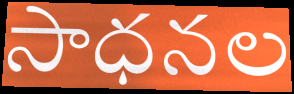
సాధనల